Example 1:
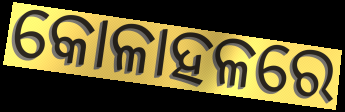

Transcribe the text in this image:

କୋଳାହଳରେ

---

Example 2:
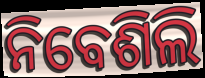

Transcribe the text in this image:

ନିବେଶିଲି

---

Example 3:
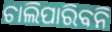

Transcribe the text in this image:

ଚାଲିପାରିବନି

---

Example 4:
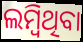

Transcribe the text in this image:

ଲମ୍ବିଥିବା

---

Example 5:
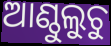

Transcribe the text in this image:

ଆଣ୍ଠୁଲୁଚୁ